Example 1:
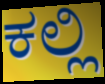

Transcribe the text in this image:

ಕಲ್ಲಿ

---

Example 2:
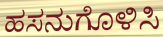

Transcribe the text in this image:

ಹಸನುಗೊಳಿಸಿ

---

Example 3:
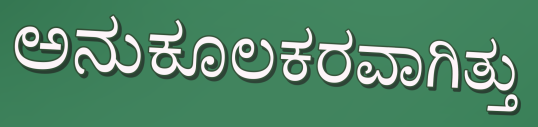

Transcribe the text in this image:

ಅನುಕೂಲಕರವಾಗಿತ್ತು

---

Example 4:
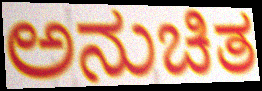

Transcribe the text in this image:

ಅನುಚಿತ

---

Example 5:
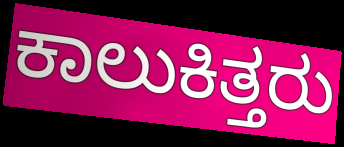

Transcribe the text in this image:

ಕಾಲುಕಿತ್ತರು